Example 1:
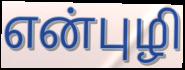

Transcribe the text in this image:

என்புழி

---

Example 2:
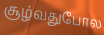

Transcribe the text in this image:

சூழ்வதுபோல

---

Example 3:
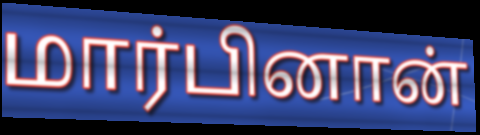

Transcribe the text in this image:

மார்பினான்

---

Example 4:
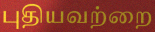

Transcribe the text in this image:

புதியவற்றை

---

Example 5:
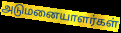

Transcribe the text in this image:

அடுமனையாளர்கள்